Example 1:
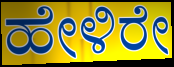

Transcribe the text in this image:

ಹೇಳಿರೇ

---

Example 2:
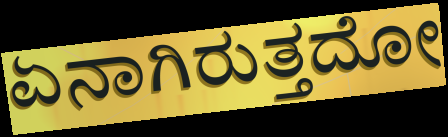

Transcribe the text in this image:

ಏನಾಗಿರುತ್ತದೋ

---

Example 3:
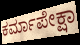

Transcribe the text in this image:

ಕರ್ಮಾಪೇಕ್ಷಾ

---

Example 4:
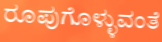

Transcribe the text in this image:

ರೂಪುಗೊಳ್ಳುವಂತೆ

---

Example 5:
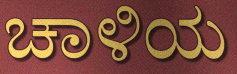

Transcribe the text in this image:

ಚಾಳಿಯ